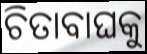
ଚିତାବାଘକୁ